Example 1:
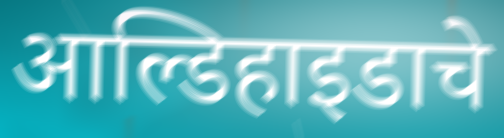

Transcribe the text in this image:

आल्डिहाइडाचे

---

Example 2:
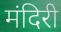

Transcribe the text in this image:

मंदिरी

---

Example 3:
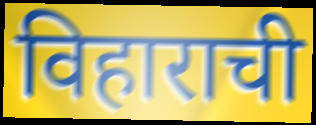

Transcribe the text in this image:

विहाराची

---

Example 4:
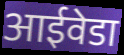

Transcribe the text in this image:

आईवेडा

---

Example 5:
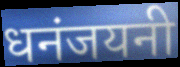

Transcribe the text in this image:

धनंजयनी